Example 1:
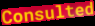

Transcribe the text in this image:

Consulted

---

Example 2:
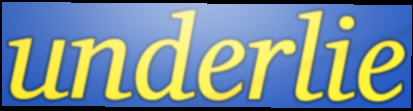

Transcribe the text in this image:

underlie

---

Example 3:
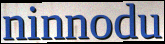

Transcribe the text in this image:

ninnodu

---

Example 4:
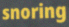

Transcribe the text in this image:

snoring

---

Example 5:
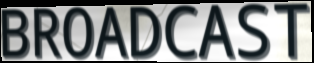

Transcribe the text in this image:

BROADCAST